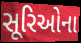
સૂરિઓના